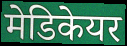
मेडिकेयर